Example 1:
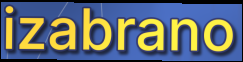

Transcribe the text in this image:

izabrano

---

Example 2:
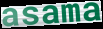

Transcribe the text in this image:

asama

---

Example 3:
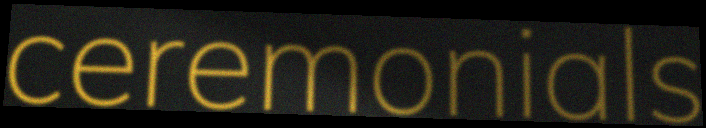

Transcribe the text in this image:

ceremonials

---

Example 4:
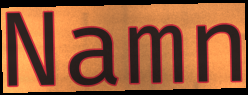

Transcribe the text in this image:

Namn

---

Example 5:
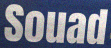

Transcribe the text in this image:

Souad